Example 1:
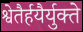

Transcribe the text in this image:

श्वेतैर्हयैर्युक्ते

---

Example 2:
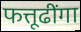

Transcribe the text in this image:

फत्तूढींगा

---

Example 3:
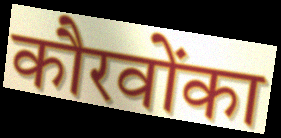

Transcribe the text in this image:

कौरवोंका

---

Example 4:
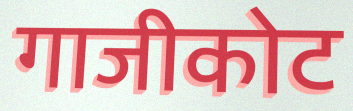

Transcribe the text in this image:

गाजीकोट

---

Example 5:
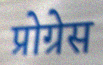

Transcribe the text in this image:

प्रोग्रेस